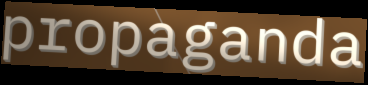
propaganda